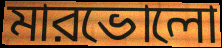
মারভোলো